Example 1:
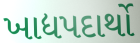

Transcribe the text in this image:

ખાદ્યપદાર્થો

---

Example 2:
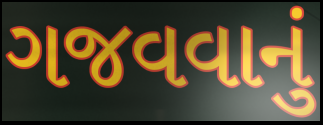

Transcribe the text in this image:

ગજવવાનું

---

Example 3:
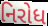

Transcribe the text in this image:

નિરોધ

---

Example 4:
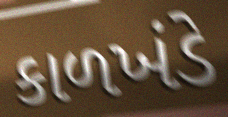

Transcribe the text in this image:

કાળખંડે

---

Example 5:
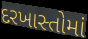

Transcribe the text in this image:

દરખાસ્તોમાં